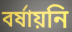
বর্ষায়নি